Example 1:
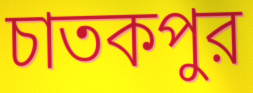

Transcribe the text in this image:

চাতকপুর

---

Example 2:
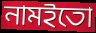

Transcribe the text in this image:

নামইতো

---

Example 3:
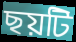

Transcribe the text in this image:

ছয়টি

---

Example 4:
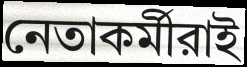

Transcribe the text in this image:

নেতাকর্মীরাই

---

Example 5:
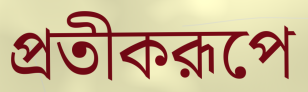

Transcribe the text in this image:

প্রতীকরূপে